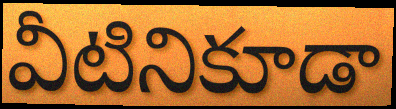
వీటినికూడా